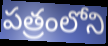
పత్రంలోని